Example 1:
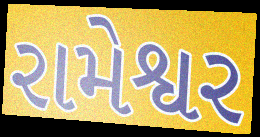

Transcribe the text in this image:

રામેશ્વર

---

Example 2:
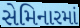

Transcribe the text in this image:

સેમિનારમાં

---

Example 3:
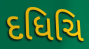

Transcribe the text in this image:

દધિચિ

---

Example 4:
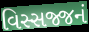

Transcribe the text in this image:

વિસ્સજ્જનં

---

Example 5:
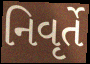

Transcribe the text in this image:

નિવૃર્તે